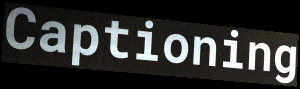
Captioning